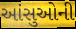
આંસુઓની